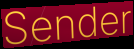
Sender